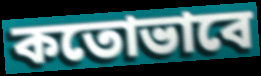
কতোভাবে